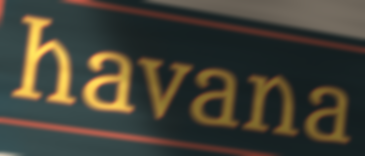
havana